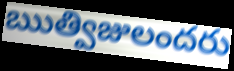
ఋత్విజులందరు